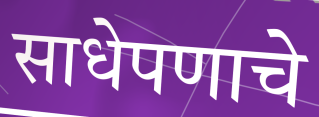
साधेपणाचे